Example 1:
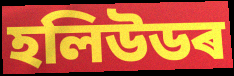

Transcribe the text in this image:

হলিউডৰ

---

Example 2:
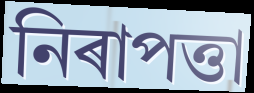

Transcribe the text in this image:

নিৰাপত্তা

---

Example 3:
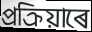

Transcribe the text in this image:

প্ৰক্ৰিয়াৰে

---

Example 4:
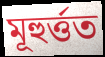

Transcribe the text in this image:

মূহুৰ্ত্তত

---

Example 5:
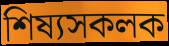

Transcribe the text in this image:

শিষ্যসকলক